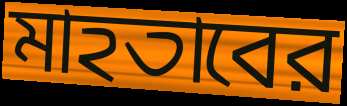
মাহতাবের